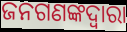
ଜନଗଣଙ୍କଦ୍ୱାରା